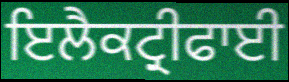
ਇਲੈਕਟ੍ਰੀਫਾਈ